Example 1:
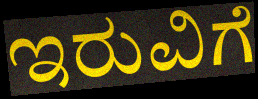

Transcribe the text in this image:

ಇರುವಿಗೆ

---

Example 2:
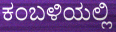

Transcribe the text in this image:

ಕಂಬಳಿಯಲ್ಲಿ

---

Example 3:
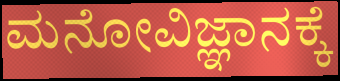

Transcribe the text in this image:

ಮನೋವಿಜ್ಞಾನಕ್ಕೆ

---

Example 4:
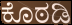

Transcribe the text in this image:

ಕೊಠಡಿ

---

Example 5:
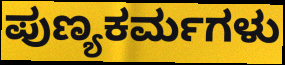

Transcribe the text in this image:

ಪುಣ್ಯಕರ್ಮಗಳು